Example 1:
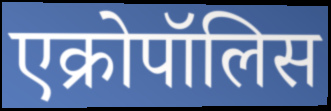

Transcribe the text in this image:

एक्रोपॉलिस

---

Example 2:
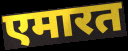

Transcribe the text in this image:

एमारत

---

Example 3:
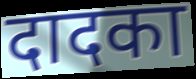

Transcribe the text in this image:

दादका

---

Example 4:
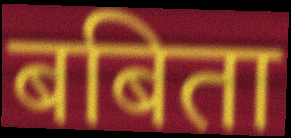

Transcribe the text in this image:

बबिता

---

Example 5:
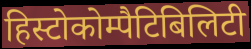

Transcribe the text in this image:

हिस्टोकोम्पैटिबिलिटी